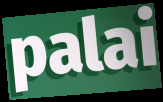
palai